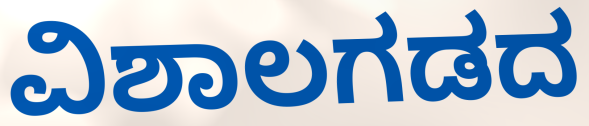
ವಿಶಾಲಗಡದ